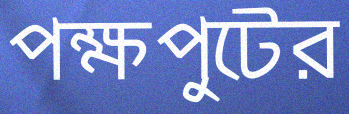
পক্ষপুটের